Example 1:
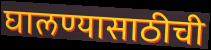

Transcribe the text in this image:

घालण्यासाठीची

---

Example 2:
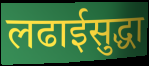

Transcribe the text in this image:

लढाईसुद्धा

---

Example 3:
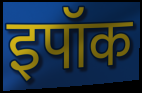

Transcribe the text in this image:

इपॉक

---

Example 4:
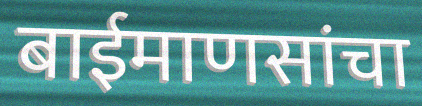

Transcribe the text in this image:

बाईमाणसांचा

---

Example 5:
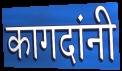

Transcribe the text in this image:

कागदांनी